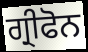
ਗ੍ਰੀਫੋਨ